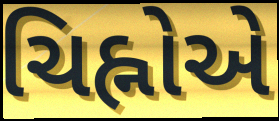
ચિહ્નોએ